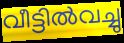
വീട്ടിൽവച്ചു